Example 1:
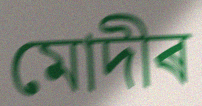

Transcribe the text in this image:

মোদীৰ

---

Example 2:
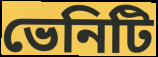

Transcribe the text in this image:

ভেনিটি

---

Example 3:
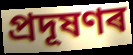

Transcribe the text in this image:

প্ৰদূষণৰ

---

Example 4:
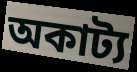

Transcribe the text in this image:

অকাট্য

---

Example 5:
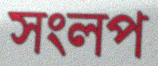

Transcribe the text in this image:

সংলপ